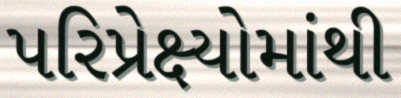
પરિપ્રેક્ષ્યોમાંથી